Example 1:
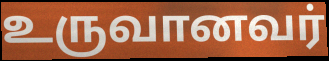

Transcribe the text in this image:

உருவானவர்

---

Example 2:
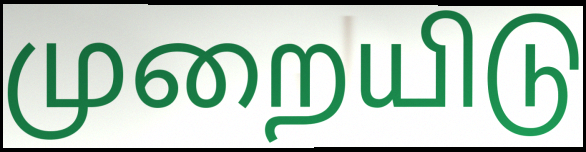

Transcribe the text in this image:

முறையிடு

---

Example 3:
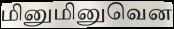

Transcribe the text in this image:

மினுமினுவென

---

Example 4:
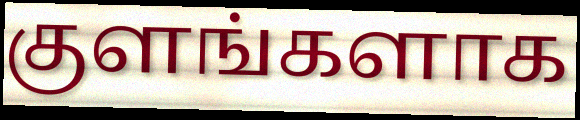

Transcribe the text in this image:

குளங்களாக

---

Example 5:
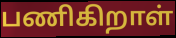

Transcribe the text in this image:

பணிகிறாள்